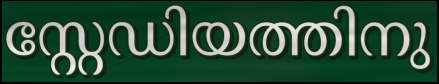
സ്റ്റേഡിയത്തിനു